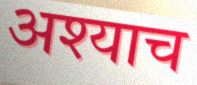
अश्याच